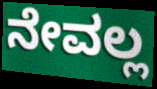
ನೇವಲ್ಲ